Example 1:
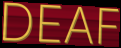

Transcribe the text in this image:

DEAF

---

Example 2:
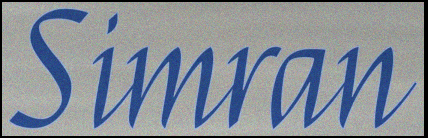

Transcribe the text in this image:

Simran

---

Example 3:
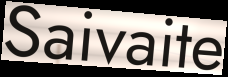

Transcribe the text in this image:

Saivaite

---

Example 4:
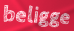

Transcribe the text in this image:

beligge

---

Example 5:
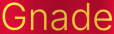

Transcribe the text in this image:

Gnade